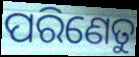
ପରିଣେତୁ